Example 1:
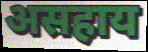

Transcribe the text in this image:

असहाय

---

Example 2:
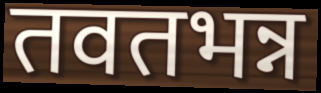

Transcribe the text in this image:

तवतभन्न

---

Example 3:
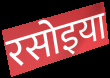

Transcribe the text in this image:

रसोइया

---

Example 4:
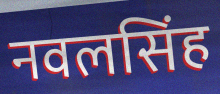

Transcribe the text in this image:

नवलसिंह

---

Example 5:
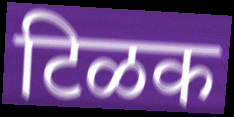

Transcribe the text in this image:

टिळक